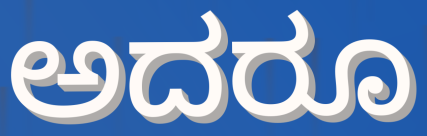
ಅದರೂ